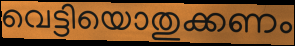
വെട്ടിയൊതുക്കണം